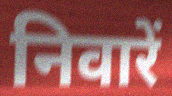
निवारें